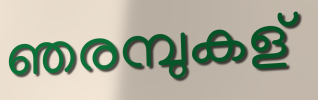
ഞരമ്പുകള്